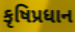
કૃષિપ્રધાન